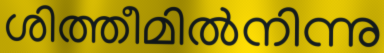
ശിത്തീമിൽനിന്നു